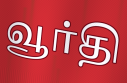
வூர்தி